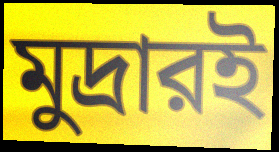
মুদ্রারই